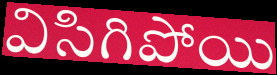
విసిగిపోయి